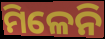
ମିଳେନି